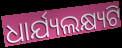
ଧାର୍ଯ୍ୟଲକ୍ଷ୍ୟଟି